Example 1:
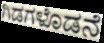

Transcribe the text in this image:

ಗಿಡಗಳೊಡನೆ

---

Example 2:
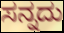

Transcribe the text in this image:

ಸನ್ನದು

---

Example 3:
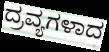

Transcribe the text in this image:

ದ್ರವ್ಯಗಳಾದ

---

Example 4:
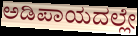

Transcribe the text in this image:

ಅಡಿಪಾಯದಲ್ಲೇ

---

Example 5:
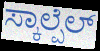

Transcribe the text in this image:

ಸ್ಕಾಲ್ಪೆಲ್